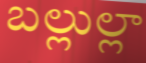
బల్లుల్లా